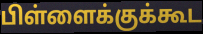
பிள்ளைக்குக்கூட